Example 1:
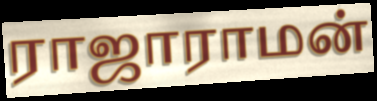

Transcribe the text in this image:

ராஜாராமன்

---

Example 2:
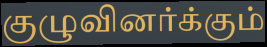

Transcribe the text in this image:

குழுவினர்க்கும்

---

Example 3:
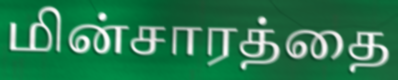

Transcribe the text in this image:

மின்சாரத்தை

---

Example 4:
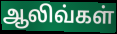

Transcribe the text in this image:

ஆலிவ்கள்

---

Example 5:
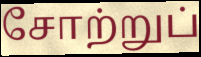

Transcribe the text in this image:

சோற்றுப்